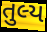
તુલ્ય